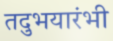
तदुभयारंभी